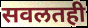
सवलतही